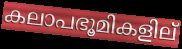
കലാപഭൂമികളില്